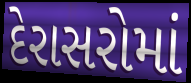
દેરાસરોમાં